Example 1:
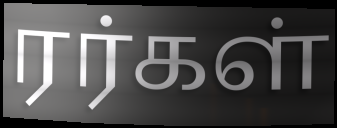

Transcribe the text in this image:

ரர்கள்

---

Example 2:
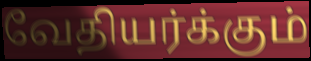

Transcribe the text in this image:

வேதியர்க்கும்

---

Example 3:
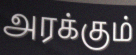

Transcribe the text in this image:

அரக்கும்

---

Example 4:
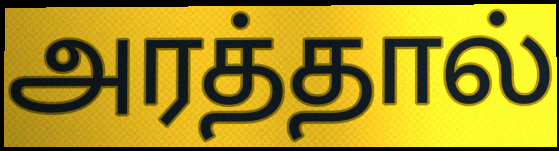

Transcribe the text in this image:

அரத்தால்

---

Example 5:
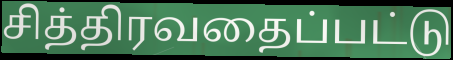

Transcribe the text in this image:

சித்திரவதைப்பட்டு